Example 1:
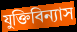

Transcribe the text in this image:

যুক্তিবিন্যাস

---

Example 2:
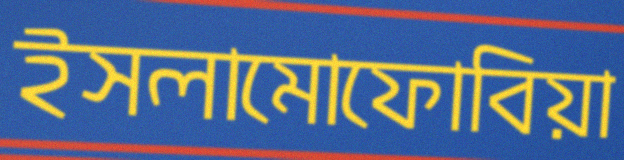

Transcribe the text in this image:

ইসলামোফোবিয়া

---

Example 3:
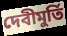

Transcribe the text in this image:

দেবীমুর্তি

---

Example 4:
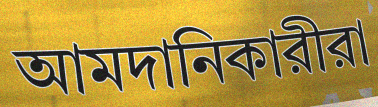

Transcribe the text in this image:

আমদানিকারীরা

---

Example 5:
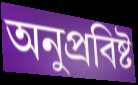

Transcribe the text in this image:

অনুপ্রবিষ্ট